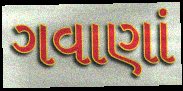
ગવાણાં